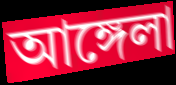
আঙ্গেলা